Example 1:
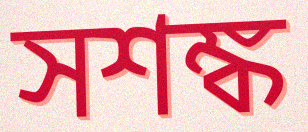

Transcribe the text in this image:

সশঙ্ক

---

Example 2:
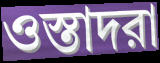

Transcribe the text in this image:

ওস্তাদরা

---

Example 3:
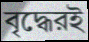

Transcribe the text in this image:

বৃদ্ধেরই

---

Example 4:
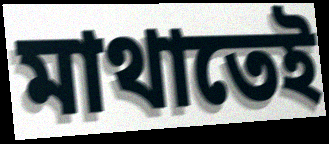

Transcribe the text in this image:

মাথাতেই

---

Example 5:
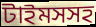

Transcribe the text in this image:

টাইমসসহ